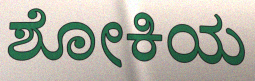
ಶೋಕಿಯ